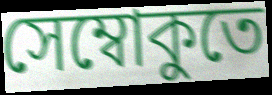
সেম্বোকুতে